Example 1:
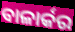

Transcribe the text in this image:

ବାଳାର୍କର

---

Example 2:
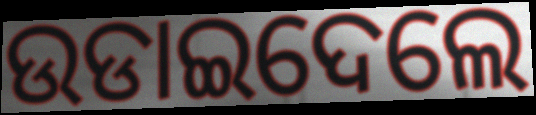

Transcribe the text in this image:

ଉଡାଇଦେଲେ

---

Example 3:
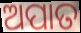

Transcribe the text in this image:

ଅପାତ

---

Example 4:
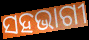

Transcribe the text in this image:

ସହଭାଗୀ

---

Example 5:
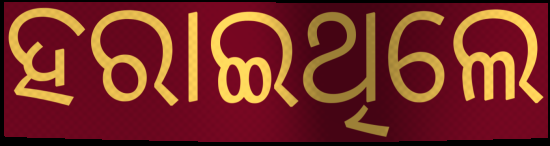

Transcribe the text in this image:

ହରାଇଥିଲେ